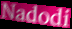
Nadodi